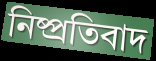
নিষ্প্রতিবাদ